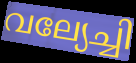
വല്യേച്ചി